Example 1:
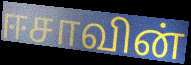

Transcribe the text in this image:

ஈசாவின்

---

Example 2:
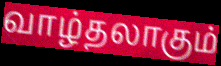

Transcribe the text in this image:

வாழ்தலாகும்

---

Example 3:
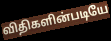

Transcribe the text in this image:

விதிகளின்படியே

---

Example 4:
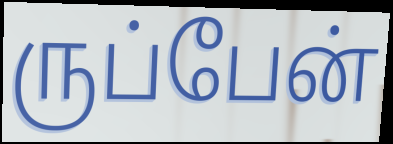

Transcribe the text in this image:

ருப்பேன்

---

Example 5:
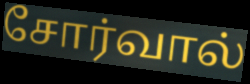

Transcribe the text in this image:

சோர்வால்